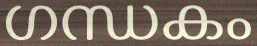
ഗന്ധകം